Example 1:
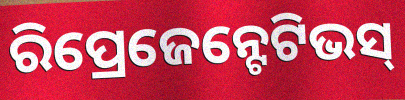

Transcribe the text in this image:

ରିପ୍ରେଜେନ୍ଟେଟିଭସ୍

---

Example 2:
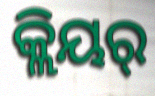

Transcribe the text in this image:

କ୍ଲିୟର୍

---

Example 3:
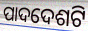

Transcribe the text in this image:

ପାଦଦେଶଟି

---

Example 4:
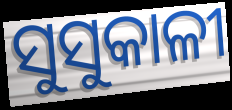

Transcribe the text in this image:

ସୁସୁକାଳୀ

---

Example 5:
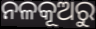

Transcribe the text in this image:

ନଳକୂଅରୁ